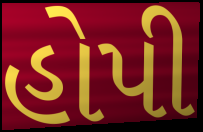
હોપી